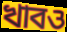
খাবও